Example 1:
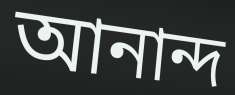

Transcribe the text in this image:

আনান্দ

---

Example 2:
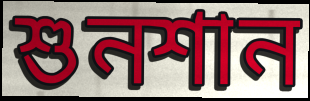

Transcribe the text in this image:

শুনশান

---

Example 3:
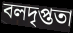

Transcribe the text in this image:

বলদৃপ্ততা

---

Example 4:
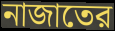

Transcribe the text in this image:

নাজাতের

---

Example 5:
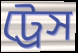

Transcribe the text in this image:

ট্রেস